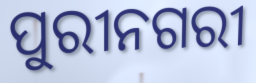
ପୁରୀନଗରୀ